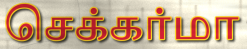
செக்கர்மா